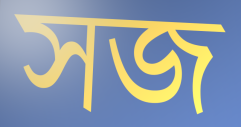
সজ